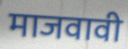
माजवावी